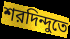
শরদিন্দুতে